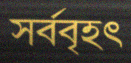
সর্ববৃহৎ